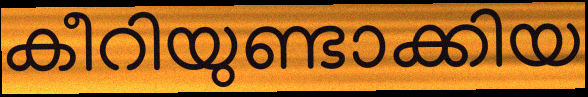
കീറിയുണ്ടാക്കിയ